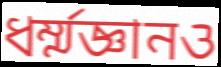
ধর্ম্মজ্ঞানও